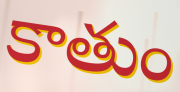
కాతుం